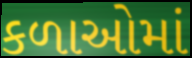
કળાઓમાં